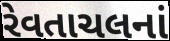
રેવતાચલનાં